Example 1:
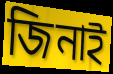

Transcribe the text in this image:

জিনাই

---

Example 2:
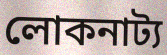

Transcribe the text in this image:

লোকনাট্য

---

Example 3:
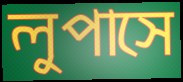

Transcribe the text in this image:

লুপাসে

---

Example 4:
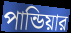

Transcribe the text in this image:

পান্ডিয়ার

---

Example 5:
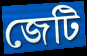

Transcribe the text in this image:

জেটি